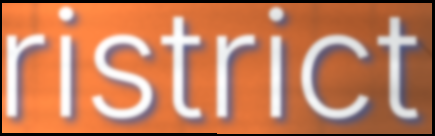
ristrict